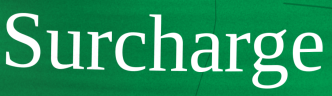
Surcharge